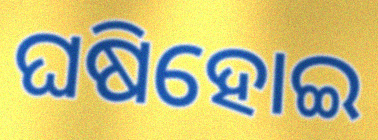
ଘଷିହୋଇ